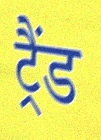
ट्रैंड